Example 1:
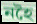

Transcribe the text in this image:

নহৈ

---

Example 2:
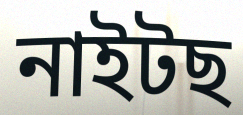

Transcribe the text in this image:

নাইটছ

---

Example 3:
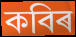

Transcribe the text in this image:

কবিৰ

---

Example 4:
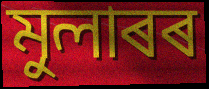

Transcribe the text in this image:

মুলাৰৰ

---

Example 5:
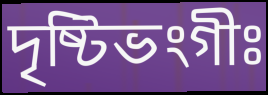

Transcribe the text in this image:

দৃষ্টিভংগীঃ